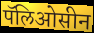
पॅलिओसीन